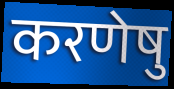
करणेषु